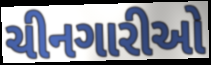
ચીનગારીઓ